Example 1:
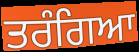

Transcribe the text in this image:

ਤਰੰਗਿਆ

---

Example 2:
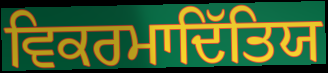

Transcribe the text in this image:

ਵਿਕਰਮਾਦਿੱਤਿਯ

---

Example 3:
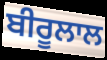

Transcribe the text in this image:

ਬੀਰੂਲਾਲ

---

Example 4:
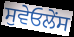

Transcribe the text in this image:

ਸੁਵੇਓਲੇਂਸ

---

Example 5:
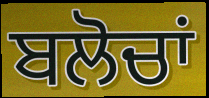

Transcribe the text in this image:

ਬਲੋਚਾਂ